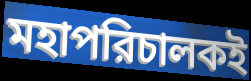
মহাপরিচালকই